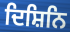
ਦਿਸ਼ਿਨਿ